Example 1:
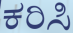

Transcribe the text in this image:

ಕರಿಸಿ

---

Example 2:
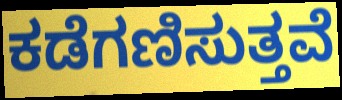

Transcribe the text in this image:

ಕಡೆಗಣಿಸುತ್ತವೆ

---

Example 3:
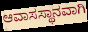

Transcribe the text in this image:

ಆವಾಸಸ್ಥಾನವಾಗಿ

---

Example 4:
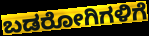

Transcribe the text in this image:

ಬಡರೋಗಿಗಳಿಗೆ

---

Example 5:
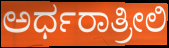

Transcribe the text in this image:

ಅರ್ಧರಾತ್ರೀಲಿ